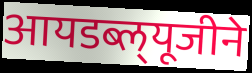
आयडब्ल्यूजीने